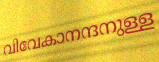
വിവേകാനന്ദനുള്ള